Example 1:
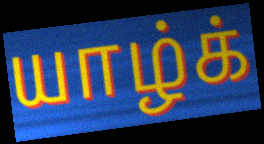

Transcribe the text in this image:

யாழ்க்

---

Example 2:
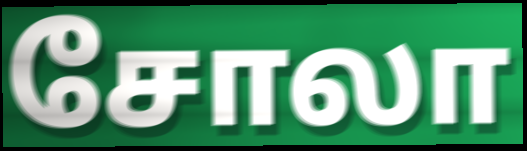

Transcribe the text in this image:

சோலா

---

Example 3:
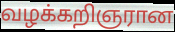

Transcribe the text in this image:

வழக்கறிஞரான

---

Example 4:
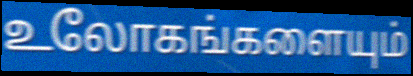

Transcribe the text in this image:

உலோகங்களையும்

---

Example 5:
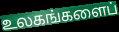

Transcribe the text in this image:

உலகங்களைப்